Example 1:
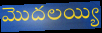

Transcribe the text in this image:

మొదలయ్యి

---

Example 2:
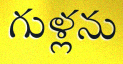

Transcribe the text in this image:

గుళ్లను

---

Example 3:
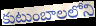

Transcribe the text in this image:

కుటుంబాలలోని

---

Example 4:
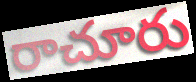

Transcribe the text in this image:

రాచూరు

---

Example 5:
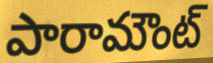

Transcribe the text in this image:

పారామౌంట్